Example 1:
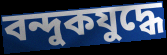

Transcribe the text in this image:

বন্দুকযুদ্ধে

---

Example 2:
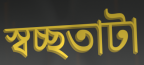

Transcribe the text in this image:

স্বচ্ছতাটা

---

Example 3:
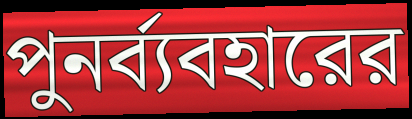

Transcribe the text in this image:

পুনর্ব্যবহারের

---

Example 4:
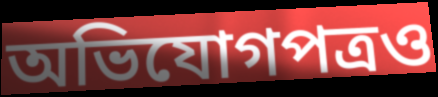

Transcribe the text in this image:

অভিযোগপত্রও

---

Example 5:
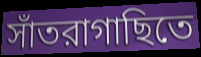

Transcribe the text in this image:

সাঁতরাগাছিতে